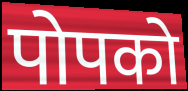
पोपको